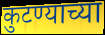
कुटण्याच्या